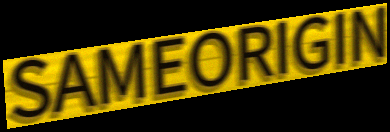
SAMEORIGIN